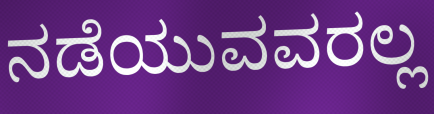
ನಡೆಯುವವರಲ್ಲ